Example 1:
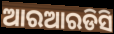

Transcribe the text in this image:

ଆରଆରଡିସି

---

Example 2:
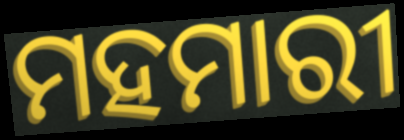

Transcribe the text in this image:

ମହମାରୀ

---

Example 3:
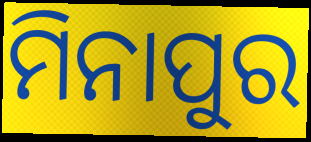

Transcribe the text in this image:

ମିନାପୁର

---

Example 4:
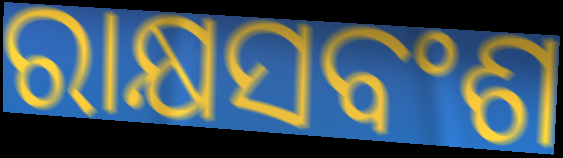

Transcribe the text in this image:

ରାକ୍ଷସବଂଶ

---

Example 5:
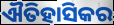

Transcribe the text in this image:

ଐତିହାସିକର